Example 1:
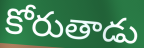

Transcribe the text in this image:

కోరుతాడు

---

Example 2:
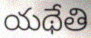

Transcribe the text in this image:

యథేతి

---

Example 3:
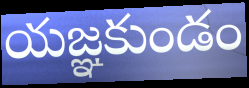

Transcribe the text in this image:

యజ్ఞకుండం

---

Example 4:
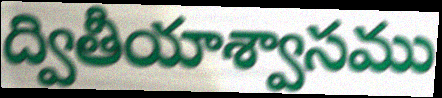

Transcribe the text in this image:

ద్వితీయాశ్వాసము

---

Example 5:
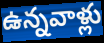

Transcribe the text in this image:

ఉన్నవాళ్లు